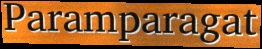
Paramparagat